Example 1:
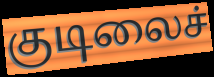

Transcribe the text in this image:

குடிலைச்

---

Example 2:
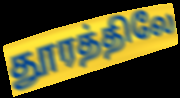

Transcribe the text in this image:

தூரத்திலே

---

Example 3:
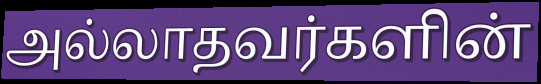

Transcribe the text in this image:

அல்லாதவர்களின்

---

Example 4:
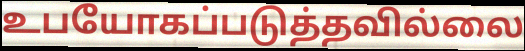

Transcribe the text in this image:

உபயோகப்படுத்தவில்லை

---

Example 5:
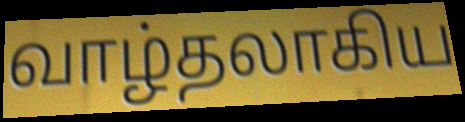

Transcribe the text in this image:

வாழ்தலாகிய